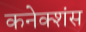
कनेक्शंस